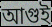
আগুই